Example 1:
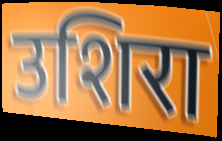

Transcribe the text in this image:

उशिरा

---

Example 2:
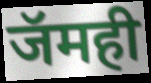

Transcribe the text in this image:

जॅमही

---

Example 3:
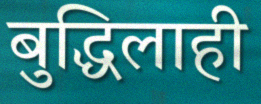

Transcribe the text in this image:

बुद्धिलाही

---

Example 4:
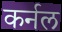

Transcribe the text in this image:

कर्नल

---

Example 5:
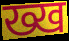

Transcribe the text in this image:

ख्ख